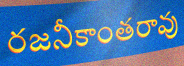
రజనీకాంతరావు